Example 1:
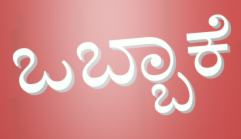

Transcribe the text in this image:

ಒಬ್ಬಾಕೆ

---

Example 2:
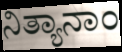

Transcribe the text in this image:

ನಿತ್ಯಾನಾಂ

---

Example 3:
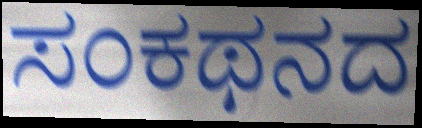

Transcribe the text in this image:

ಸಂಕಥನದ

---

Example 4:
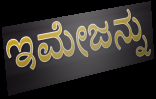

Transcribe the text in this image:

ಇಮೇಜನ್ನು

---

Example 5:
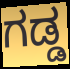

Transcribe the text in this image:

ಗಡ್ಡ